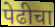
पेढीचा